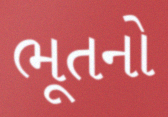
ભૂતનો